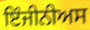
ਇੰਜੀਨੀਅਸ